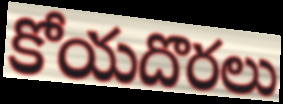
కోయదొరలు